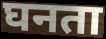
घनता